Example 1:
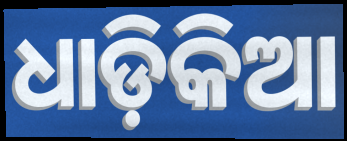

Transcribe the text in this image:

ଧାଡ଼ିକିଆ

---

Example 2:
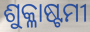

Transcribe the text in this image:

ଶୁକ୍ଳାଷ୍ଟମୀ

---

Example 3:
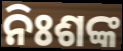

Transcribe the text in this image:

ନିଃଶଙ୍କ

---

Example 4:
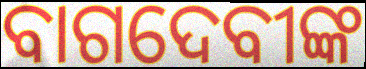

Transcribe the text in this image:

ବାଗଦେବୀଙ୍କ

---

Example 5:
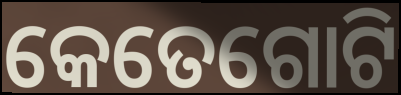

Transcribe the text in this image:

କେତେଗୋଟି